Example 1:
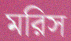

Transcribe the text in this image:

মরিস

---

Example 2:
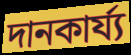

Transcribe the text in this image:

দানকার্য্য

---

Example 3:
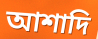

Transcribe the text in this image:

আশাদি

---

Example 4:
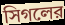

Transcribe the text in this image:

সিগলের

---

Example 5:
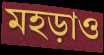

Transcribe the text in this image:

মহড়াও